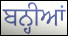
ਬਨ੍ਹੀਆਂ